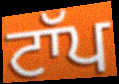
ਟਾੱਪ